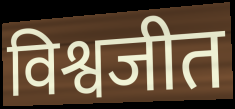
विश्वजीत